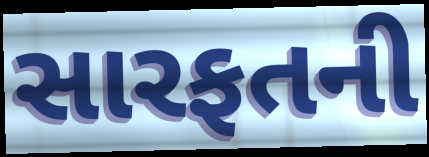
સારફતની